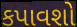
કપાવશો